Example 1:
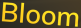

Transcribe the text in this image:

Bloom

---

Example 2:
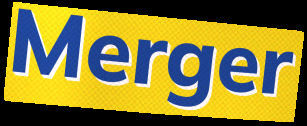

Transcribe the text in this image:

Merger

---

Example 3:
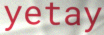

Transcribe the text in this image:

yetay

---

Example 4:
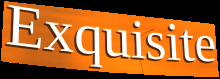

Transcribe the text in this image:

Exquisite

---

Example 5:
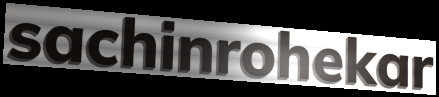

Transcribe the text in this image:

sachinrohekar